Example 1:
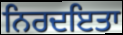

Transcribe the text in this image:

ਨਿਰਦਇਤਾ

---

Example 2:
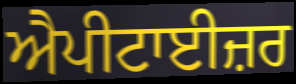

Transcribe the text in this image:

ਐਪੀਟਾਈਜ਼ਰ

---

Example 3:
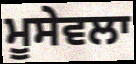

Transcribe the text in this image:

ਮੂਸੇਵਲਾ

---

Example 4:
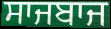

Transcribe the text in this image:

ਸਾਜਬਾਜ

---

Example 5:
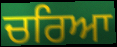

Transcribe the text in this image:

ਚਰਿਆ